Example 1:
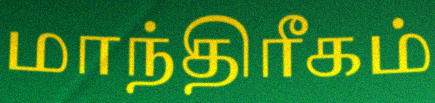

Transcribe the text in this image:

மாந்திரீகம்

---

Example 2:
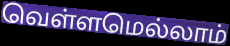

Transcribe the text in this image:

வெள்ளமெல்லாம்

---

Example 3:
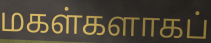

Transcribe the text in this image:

மகள்களாகப்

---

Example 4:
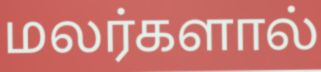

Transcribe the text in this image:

மலர்களால்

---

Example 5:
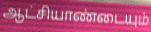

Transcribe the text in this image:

ஆட்சியாண்டையும்